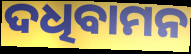
ଦଧିବାମନ